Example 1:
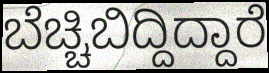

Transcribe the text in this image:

ಬೆಚ್ಚಿಬಿದ್ದಿದ್ದಾರೆ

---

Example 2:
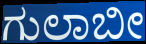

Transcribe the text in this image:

ಗುಲಾಬೀ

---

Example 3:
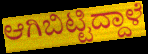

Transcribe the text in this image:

ಆಗಿಬಿಟ್ಟಿದ್ದಾಳೆ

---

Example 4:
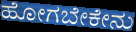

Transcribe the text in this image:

ಹೋಗಬೇಕೇನು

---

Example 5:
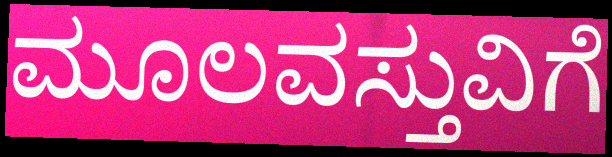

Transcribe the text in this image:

ಮೂಲವಸ್ತುವಿಗೆ